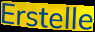
Erstelle